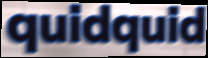
quidquid